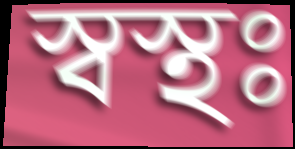
স্বস্থঃ